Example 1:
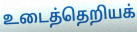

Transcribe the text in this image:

உடைத்தெறியக்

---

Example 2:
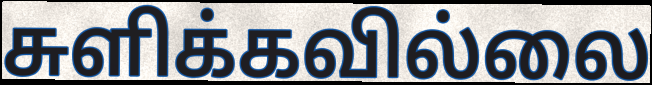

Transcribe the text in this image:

சுளிக்கவில்லை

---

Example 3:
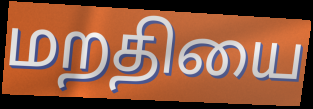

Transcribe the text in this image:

மறதியை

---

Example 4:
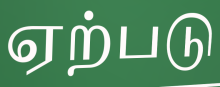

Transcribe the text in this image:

ஏற்படு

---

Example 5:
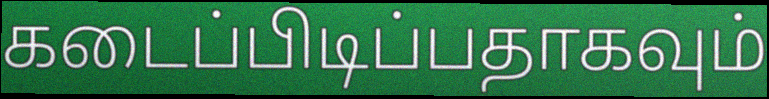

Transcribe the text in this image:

கடைப்பிடிப்பதாகவும்